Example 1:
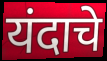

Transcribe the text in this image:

यंदाचे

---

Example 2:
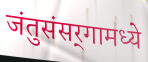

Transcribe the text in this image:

जंतुसंसर्गामध्ये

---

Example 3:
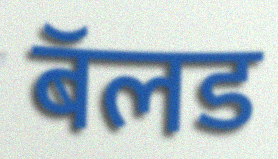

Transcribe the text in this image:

बॅलड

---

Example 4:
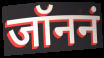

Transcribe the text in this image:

जॉननं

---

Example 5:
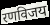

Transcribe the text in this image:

रणविजय